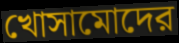
খোসামোদের